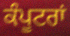
ਕੰਪੂਟਰਾਂ